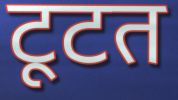
टूटत